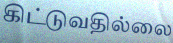
கிட்டுவதில்லை